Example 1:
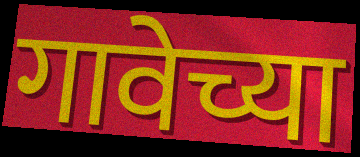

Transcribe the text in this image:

गावेच्या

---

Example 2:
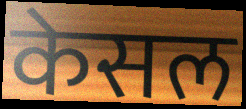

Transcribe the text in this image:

केसल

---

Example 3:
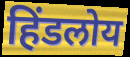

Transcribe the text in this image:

हिंडलोय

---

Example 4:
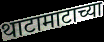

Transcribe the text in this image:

थाटामाटाच्या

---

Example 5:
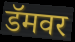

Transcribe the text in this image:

डॅमवर